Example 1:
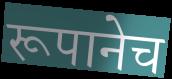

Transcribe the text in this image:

रूपानेच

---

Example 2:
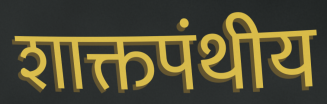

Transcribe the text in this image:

शाक्तपंथीय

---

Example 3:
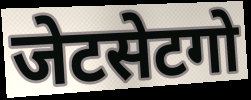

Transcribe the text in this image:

जेटसेटगो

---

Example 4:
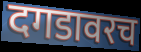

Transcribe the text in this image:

दगडावरच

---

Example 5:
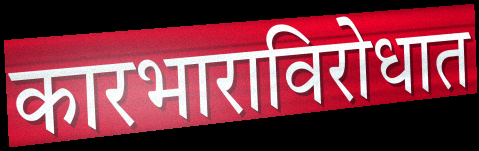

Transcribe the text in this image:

कारभाराविरोधात